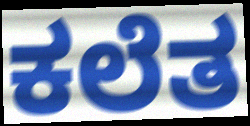
ಕಲೆತ